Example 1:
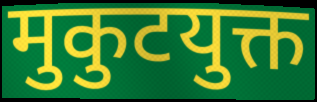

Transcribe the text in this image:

मुकुटयुक्त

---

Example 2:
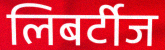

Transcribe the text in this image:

लिबर्टीज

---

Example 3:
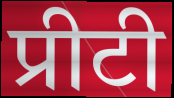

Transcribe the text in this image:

प्रीटी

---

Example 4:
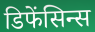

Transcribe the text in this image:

डिफेंसिन्स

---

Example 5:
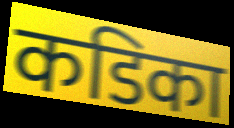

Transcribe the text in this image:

कडिका